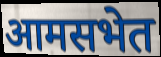
आमसभेत